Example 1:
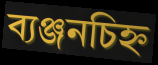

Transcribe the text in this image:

ব্যঞ্জনচিহ্ন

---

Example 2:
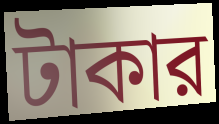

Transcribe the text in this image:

টাকার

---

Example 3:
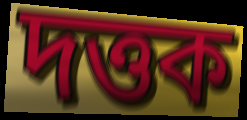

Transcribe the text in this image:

দত্তক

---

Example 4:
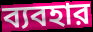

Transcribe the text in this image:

ব্যবহার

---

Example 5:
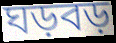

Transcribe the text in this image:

ঘড়বড়